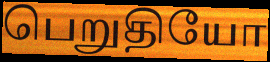
பெறுதியோ